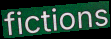
fictions